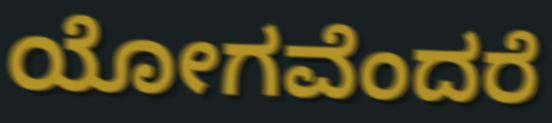
ಯೋಗವೆಂದರೆ